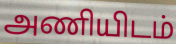
அணியிடம்